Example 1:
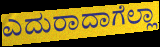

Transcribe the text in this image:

ಎದುರಾದಾಗೆಲ್ಲಾ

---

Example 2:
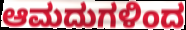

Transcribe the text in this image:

ಆಮದುಗಳಿಂದ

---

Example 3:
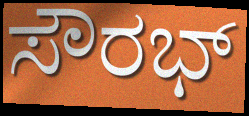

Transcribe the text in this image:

ಸೌರಭ್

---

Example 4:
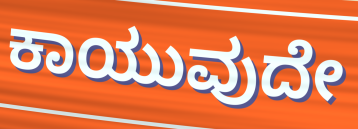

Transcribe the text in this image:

ಕಾಯುವುದೇ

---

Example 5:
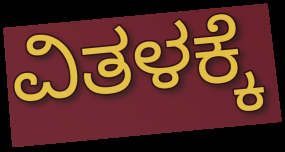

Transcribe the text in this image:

ವಿತಳಕ್ಕೆ